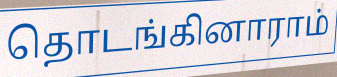
தொடங்கினாராம்